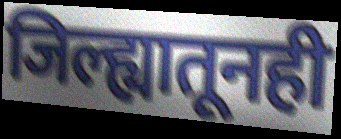
जिल्ह्यातूनही